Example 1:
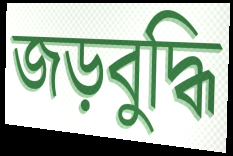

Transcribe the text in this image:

জড়বুদ্ধি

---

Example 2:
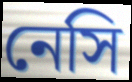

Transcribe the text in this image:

নেসি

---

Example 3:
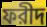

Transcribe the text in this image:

ফরীদ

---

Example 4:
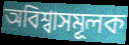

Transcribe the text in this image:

অবিশ্বাসমূলক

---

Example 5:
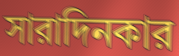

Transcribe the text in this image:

সারাদিনকার